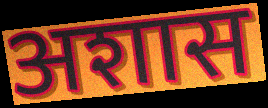
अशास